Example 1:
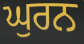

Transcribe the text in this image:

ਘੁਰਨ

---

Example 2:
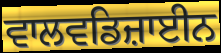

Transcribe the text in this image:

ਵਾਲਵਡਿਜ਼ਾਈਨ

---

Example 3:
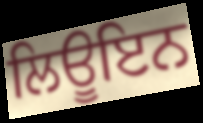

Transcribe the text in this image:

ਲਿਊਇਨ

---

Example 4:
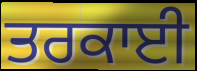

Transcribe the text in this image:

ਤਰਕਾਈ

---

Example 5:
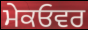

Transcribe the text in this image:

ਮੇਕਓਵਰ